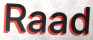
Raad